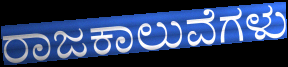
ರಾಜಕಾಲುವೆಗಳು